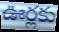
ఊర్లకు